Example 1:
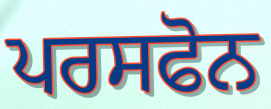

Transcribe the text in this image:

ਪਰਸਫੋਨ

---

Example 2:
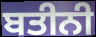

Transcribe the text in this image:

ਬਤੀਨੀ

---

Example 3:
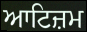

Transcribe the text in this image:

ਆਟਿਜ਼ਮ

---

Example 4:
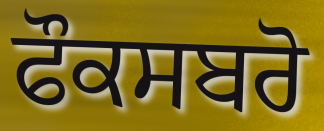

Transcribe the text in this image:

ਫੌਕਸਬਰੋ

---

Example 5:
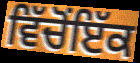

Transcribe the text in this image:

ਵਿੱਚੋਂਇੱਕ